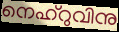
നെഹ്റുവിനു